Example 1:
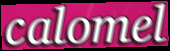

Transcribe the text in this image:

calomel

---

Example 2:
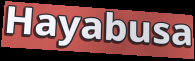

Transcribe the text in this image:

Hayabusa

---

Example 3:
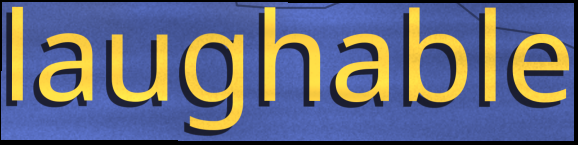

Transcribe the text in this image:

laughable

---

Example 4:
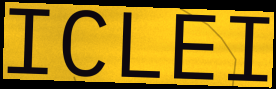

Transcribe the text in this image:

ICLEI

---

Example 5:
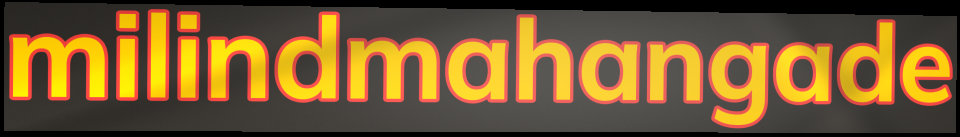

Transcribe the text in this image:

milindmahangade